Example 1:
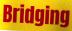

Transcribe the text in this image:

Bridging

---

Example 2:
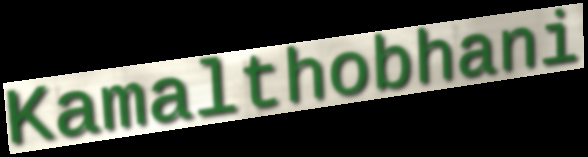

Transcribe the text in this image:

Kamalthobhani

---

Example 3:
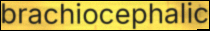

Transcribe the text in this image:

brachiocephalic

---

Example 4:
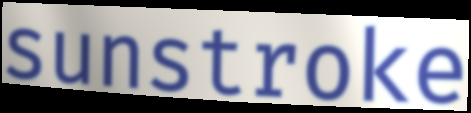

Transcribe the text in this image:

sunstroke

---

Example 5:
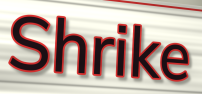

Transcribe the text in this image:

Shrike